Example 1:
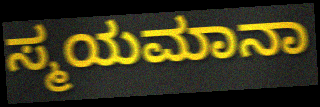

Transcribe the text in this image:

ಸ್ಮಯಮಾನಾ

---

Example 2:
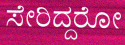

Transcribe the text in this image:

ಸೇರಿದ್ದರೋ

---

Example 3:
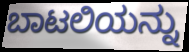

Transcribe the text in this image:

ಬಾಟಲಿಯನ್ನು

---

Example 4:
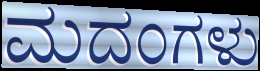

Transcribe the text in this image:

ಮದಂಗಳು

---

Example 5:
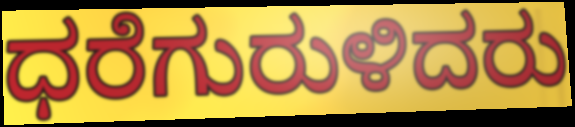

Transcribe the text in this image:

ಧರೆಗುರುಳಿದರು